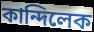
কান্দিলেক